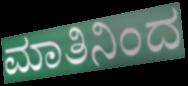
ಮಾತಿನಿಂದ